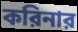
করিনার